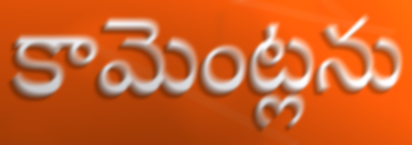
కామెంట్లను